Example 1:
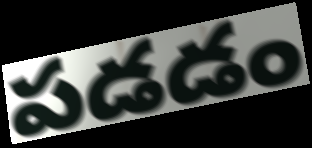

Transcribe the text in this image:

పడడం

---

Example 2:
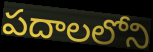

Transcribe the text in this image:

పదాలలోని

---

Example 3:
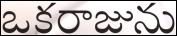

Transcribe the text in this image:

ఒకరాజును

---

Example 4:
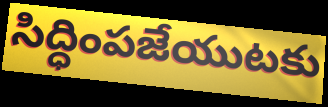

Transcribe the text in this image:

సిద్ధింపజేయుటకు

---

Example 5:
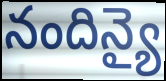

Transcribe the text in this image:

నందిన్యై